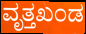
ವೃತ್ತಖಂಡ